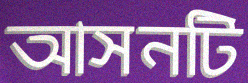
আসনটি